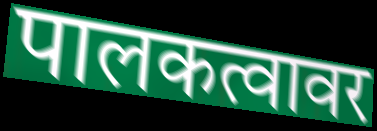
पालकत्वावर